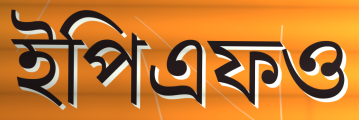
ইপিএফও